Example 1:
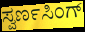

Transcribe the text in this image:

ಸ್ವರ್ಣಸಿಂಗ್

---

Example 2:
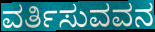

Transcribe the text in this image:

ವರ್ತಿಸುವವನ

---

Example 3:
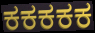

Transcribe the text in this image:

ಕಕಕಕಕ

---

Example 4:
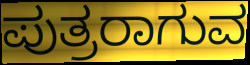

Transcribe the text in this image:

ಪುತ್ರರಾಗುವ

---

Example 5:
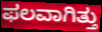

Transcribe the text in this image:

ಫಲವಾಗಿತ್ತು